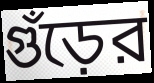
গুঁড়ের